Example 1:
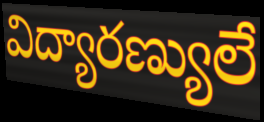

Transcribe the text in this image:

విద్యారణ్యులే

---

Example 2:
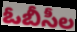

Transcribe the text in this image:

ఓబీసీల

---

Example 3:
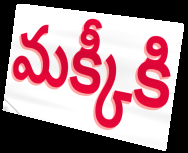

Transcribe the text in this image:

మక్కీకి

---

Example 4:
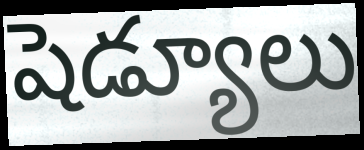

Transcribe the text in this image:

షెడ్యూలు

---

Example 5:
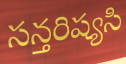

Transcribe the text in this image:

సన్తరిష్యసి